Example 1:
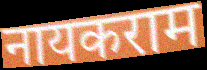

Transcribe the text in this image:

नायकराम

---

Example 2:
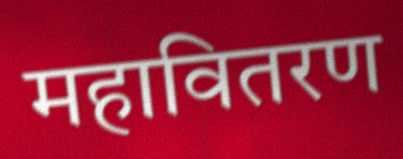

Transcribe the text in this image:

महावितरण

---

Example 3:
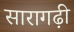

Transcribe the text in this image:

सारागढ़ी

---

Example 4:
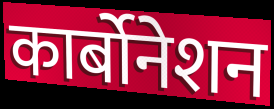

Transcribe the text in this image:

कार्बोनेशन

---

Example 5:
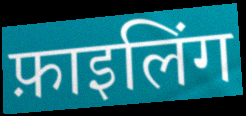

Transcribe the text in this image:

फ़ाइलिंग